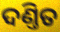
ଦଣ୍ତିତ